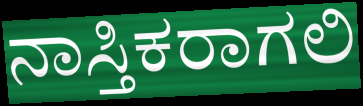
ನಾಸ್ತಿಕರಾಗಲಿ